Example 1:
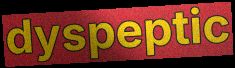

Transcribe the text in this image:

dyspeptic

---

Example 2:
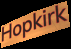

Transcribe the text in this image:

Hopkirk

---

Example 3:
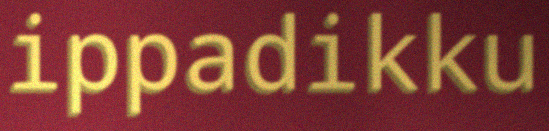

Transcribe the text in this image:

ippadikku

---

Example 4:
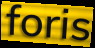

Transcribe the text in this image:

foris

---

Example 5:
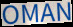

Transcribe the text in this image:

OMAN